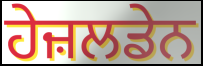
ਹੇਜ਼ਲਡੇਨ